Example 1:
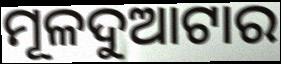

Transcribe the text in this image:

ମୂଳଦୁଆଟାର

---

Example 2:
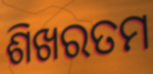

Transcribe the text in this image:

ଶିଖରତମ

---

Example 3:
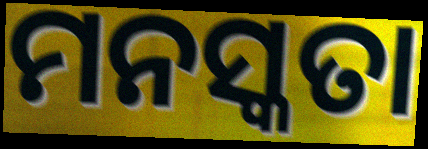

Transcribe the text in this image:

ମନସ୍କତା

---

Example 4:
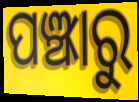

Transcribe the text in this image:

ପଞ୍ଝାରୁ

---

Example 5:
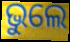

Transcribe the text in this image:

ଭୁଲେ